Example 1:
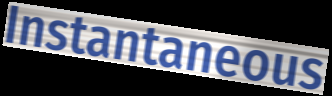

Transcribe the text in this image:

Instantaneous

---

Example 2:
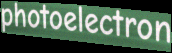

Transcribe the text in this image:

photoelectron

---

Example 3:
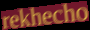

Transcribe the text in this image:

rekhecho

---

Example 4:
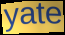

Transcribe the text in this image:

yate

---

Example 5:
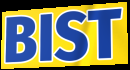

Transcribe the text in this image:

BIST